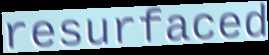
resurfaced